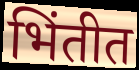
भिंतीत